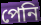
পেনি